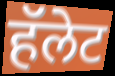
हॅलेट